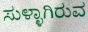
ಸುಳ್ಳಾಗಿರುವ